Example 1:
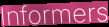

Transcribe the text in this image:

Informers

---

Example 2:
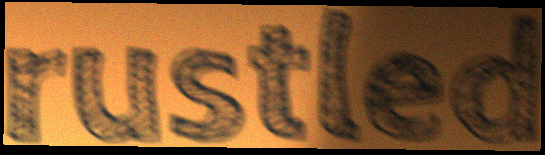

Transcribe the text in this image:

rustled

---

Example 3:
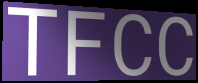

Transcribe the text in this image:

TFCC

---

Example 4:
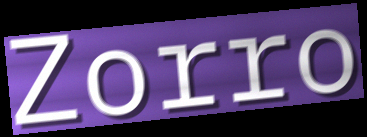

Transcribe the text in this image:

Zorro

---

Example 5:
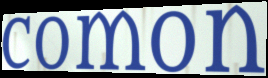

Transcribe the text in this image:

comon